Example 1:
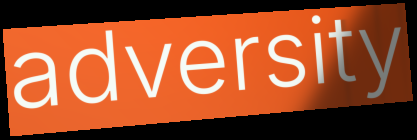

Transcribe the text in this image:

adversity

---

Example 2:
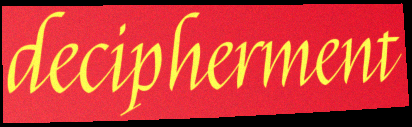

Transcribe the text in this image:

decipherment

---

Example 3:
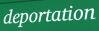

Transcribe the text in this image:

deportation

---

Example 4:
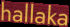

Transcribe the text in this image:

hallaka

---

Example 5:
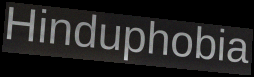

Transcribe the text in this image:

Hinduphobia